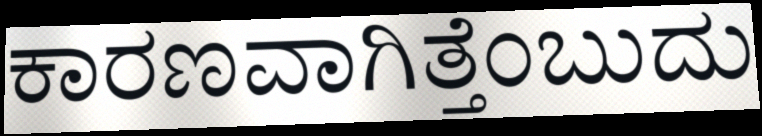
ಕಾರಣವಾಗಿತ್ತೆಂಬುದು